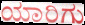
ಯಾರಿಗು